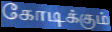
கோடிக்கும்